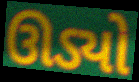
ઊડ્યો